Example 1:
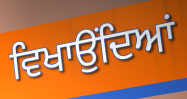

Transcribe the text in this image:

ਵਿਖਾਉਂਦਿਆਂ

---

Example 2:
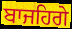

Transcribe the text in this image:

ਬਾਜਹਿਗੇ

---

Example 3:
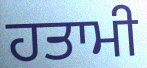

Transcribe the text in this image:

ਹਤਾਮੀ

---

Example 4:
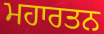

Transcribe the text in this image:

ਮਹਾਰਤਨ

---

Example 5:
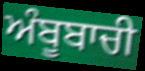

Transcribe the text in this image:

ਅੰਬੂਬਾਚੀ